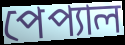
পেপ্যাল